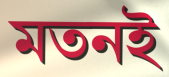
মতনই